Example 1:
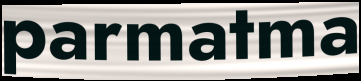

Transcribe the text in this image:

parmatma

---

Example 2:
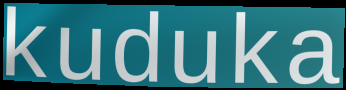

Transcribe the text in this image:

kuduka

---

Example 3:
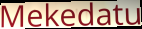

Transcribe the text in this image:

Mekedatu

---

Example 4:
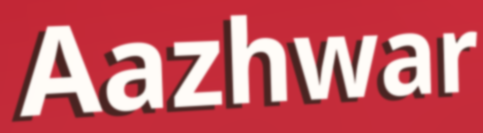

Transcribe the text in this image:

Aazhwar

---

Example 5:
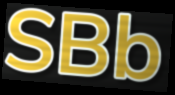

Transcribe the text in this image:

SBb